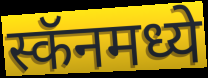
स्कॅनमध्ये